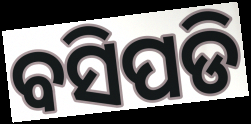
ବସିପଡି